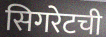
सिगरेटची